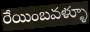
రేయింబవళ్ళూ